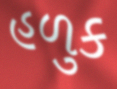
હળુક